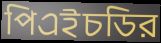
পিএইচডির